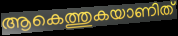
ആകെത്തുകയാണിത്